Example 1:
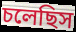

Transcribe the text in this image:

চলেছিস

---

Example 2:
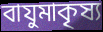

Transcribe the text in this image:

বাযুমাকৃষ্য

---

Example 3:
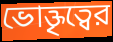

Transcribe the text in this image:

ভোক্তৃত্বের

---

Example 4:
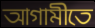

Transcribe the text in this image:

আগামীতে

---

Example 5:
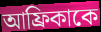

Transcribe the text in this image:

আফ্রিকাকে